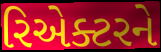
રિએક્ટરને